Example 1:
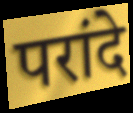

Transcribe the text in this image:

परांदे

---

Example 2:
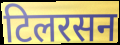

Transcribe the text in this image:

टिलरसन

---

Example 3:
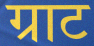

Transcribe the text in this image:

ग्राट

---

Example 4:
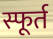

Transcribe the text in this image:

स्‍फूर्त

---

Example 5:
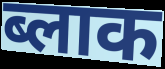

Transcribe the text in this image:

ब्लाक